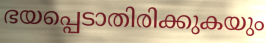
ഭയപ്പെടാതിരിക്കുകയും